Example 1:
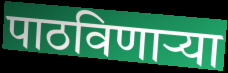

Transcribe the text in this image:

पाठविणाऱ्या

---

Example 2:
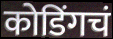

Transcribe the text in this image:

कोडिंगचं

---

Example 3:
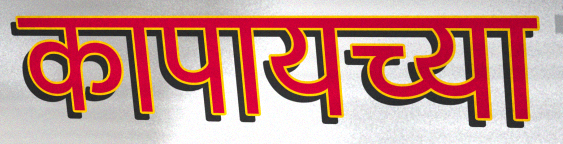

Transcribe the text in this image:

कापायच्या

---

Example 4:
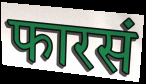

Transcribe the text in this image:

फारसं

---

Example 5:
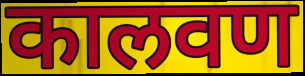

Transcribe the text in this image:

कालवण